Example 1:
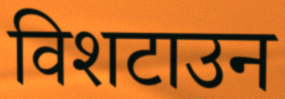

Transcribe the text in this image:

विशटाउन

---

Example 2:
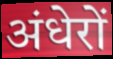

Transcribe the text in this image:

अंधेरों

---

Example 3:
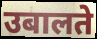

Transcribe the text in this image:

उबालते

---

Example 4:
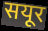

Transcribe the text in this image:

सयूर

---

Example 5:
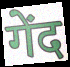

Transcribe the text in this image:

गेंद